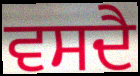
ਵਸਦੈ